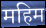
महिम